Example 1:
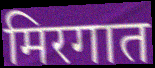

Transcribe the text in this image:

मिरगात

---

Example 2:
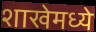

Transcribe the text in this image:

शाखेमध्ये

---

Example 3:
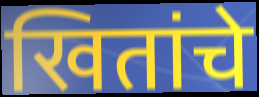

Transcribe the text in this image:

खितांचे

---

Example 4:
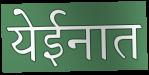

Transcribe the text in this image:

येईनात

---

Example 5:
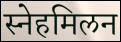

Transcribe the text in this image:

स्नेहमिलन